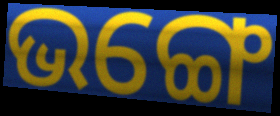
ଭଙ୍ଗେ